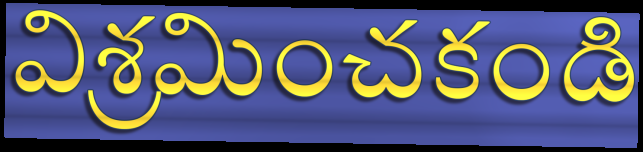
విశ్రమించకండి